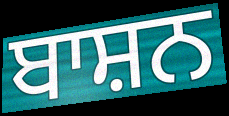
ਬਾਸ਼ਨ